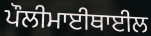
ਪੌਲੀਮਾਈਥਾਈਲ